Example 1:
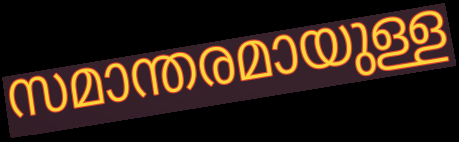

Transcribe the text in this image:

സമാന്തരമായുള്ള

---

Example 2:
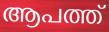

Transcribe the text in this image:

ആപത്ത്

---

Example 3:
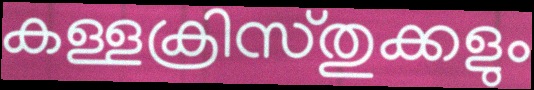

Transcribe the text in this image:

കള്ളക്രിസ്തുക്കളും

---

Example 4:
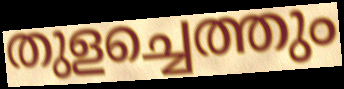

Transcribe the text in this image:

തുളച്ചെത്തും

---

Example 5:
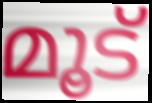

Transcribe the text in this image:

മൂട്